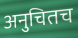
अनुचितच